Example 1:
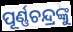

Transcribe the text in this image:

ପୂର୍ଣ୍ଣଚନ୍ଦ୍ରଙ୍କୁ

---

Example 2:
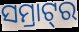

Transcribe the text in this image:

ସମ୍ରାଟ୍‌ର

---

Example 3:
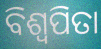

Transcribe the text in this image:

ବିଶ୍ଵପିତା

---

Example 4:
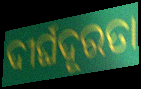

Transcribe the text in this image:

ଦୀର୍ଘଦୂରତା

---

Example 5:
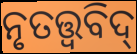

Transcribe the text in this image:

ନୃତତ୍ତ୍ଵବିଦ୍